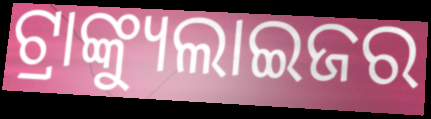
ଟ୍ରାଙ୍କ୍ୟୁଲାଇଜର